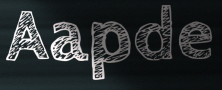
Aapde